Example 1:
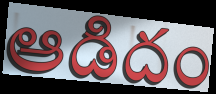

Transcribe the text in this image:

ఆడిదం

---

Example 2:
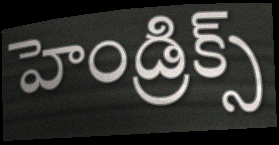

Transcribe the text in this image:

హెండ్రిక్స్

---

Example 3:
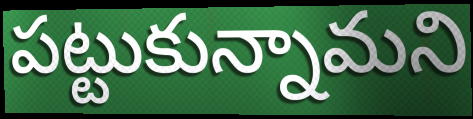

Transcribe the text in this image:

పట్టుకున్నామని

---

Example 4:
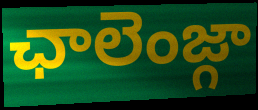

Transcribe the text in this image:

ఛాలెంజ్గా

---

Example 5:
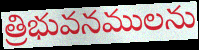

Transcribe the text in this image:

త్రిభువనములను